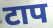
टाप